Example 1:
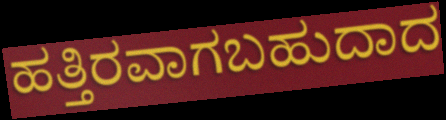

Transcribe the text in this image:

ಹತ್ತಿರವಾಗಬಹುದಾದ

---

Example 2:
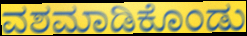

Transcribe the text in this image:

ವಶಮಾಡಿಕೊಂಡು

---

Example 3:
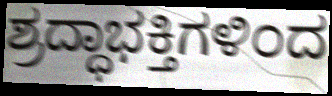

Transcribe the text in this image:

ಶ್ರದ್ಧಾಭಕ್ತಿಗಳಿಂದ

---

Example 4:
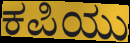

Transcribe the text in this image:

ಕಪಿಯು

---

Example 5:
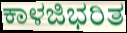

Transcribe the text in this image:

ಕಾಳಜಿಭರಿತ